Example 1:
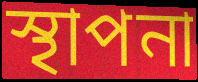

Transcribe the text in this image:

স্থাপনা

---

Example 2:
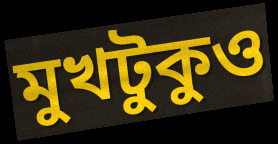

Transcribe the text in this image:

মুখটুকুও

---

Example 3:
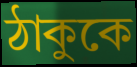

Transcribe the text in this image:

ঠাকুকে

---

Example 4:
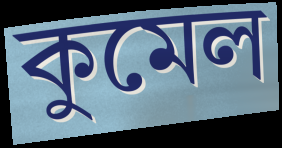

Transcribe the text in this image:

কুমেল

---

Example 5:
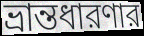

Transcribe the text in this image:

ভ্রান্তধারণার